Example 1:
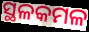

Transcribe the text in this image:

ସ୍ଥଳକମଳ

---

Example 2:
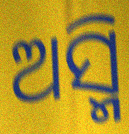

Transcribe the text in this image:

ଅସ୍ମି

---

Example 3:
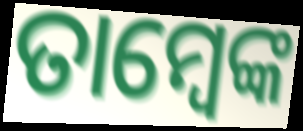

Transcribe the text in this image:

ତାମ୍ବେଙ୍କ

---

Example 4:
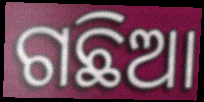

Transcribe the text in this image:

ଗଛିଆ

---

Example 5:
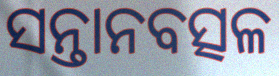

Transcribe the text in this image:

ସନ୍ତାନବତ୍ସଳ